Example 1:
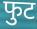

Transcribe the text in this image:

फुट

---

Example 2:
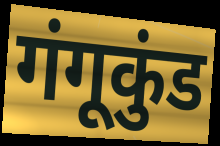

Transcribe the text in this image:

गंगूकुंड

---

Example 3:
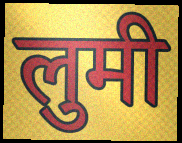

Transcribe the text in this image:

लुमी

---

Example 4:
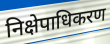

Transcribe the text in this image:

निक्षेपाधिकरण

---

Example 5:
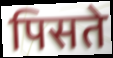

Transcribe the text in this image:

पिसते